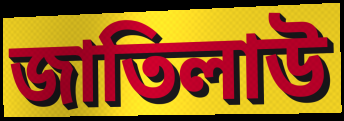
জাতিলাউ